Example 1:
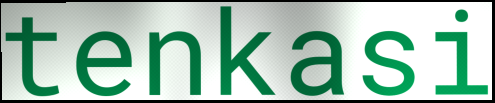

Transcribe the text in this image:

tenkasi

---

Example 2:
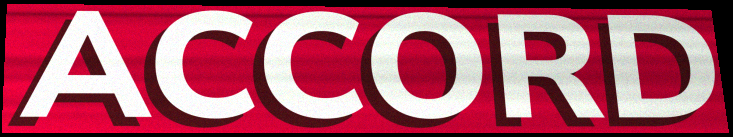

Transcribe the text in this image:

ACCORD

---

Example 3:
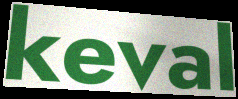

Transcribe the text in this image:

keval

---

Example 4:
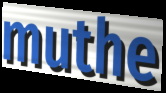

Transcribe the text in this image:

muthe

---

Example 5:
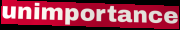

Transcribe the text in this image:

unimportance